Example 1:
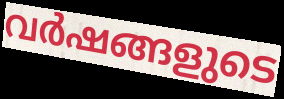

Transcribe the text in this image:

വർഷങ്ങളുടെ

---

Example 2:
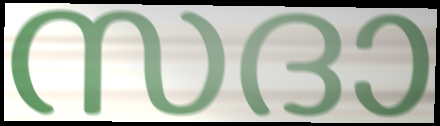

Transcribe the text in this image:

സദാ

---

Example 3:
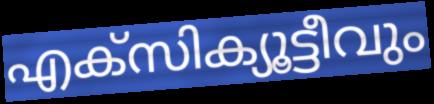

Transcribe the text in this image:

എക്സിക്യൂട്ടീവും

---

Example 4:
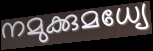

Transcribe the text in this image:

നമുക്കുമധ്യേ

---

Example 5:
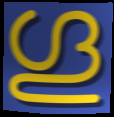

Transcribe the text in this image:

ഗൂ